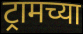
ट्रामच्या